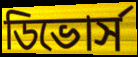
ডিভোর্স